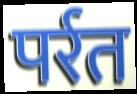
पर्रत